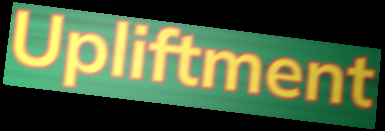
Upliftment